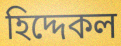
হিদ্দেকল